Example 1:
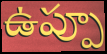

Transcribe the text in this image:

ఉప్పూ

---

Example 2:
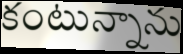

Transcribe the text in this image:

కంటున్నాను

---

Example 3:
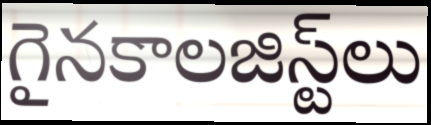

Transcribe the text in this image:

గైనకాలజిస్ట్‌లు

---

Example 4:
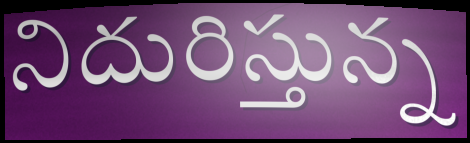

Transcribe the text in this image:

నిదురిస్తున్న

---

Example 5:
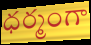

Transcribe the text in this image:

ధర్మంగా